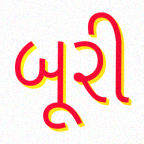
બૂરી